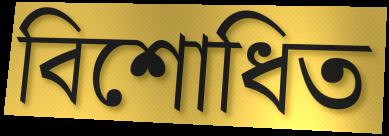
বিশোধিত